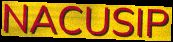
NACUSIP